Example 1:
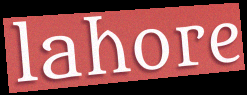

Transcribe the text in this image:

lahore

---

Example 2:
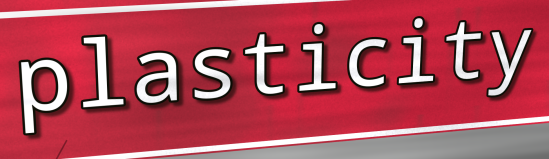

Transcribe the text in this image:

plasticity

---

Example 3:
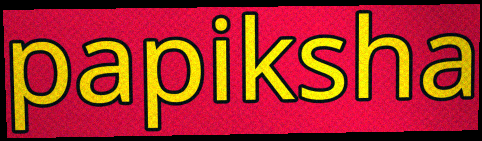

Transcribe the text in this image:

papiksha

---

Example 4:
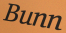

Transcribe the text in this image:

Bunn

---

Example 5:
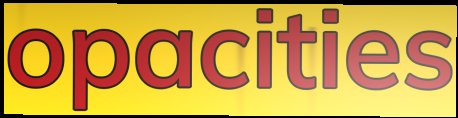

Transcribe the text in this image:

opacities